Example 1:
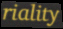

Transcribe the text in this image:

riality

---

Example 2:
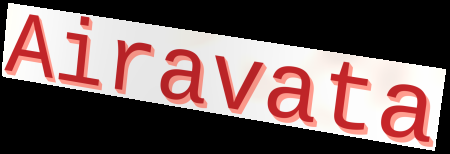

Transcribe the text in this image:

Airavata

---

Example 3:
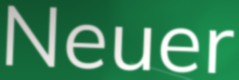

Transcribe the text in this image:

Neuer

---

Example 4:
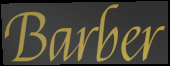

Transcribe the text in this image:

Barber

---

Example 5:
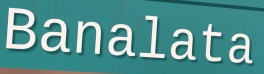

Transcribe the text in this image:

Banalata